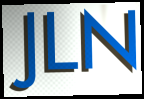
JLN